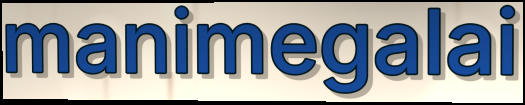
manimegalai